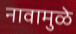
नावामुळे